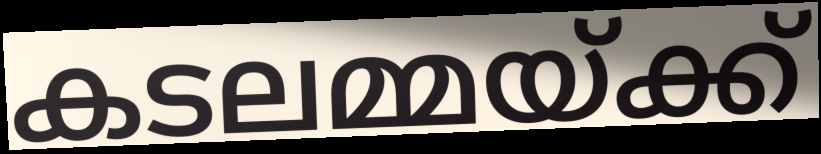
കടലമ്മയ്ക്ക്